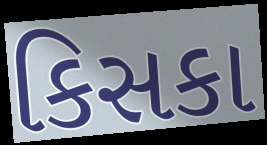
કિસકા